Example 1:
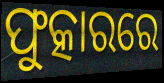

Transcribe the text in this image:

ଫୁତ୍କାରରେ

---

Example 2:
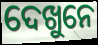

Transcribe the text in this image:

ଦେଖୁନେ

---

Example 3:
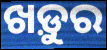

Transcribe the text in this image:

ଖଡ଼ୁର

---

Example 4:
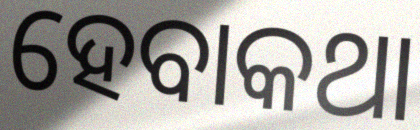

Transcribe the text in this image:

ହେବାକଥା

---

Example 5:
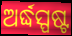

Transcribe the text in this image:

ଅର୍ଦ୍ଧସ୍ପଷ୍ଟ